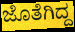
ಜೊತೆಗಿದ್ದ